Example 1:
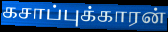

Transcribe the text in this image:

கசாப்புக்காரன்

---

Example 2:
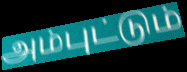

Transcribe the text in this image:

அம்புட்டும்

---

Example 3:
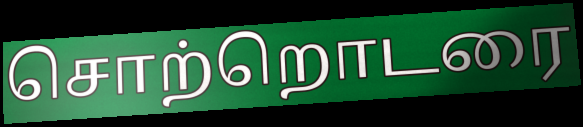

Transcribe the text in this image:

சொற்றொடரை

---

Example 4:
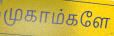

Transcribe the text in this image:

முகாம்களே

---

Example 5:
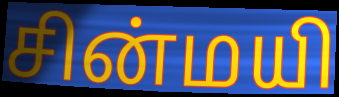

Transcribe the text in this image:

சின்மயி